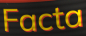
Facta